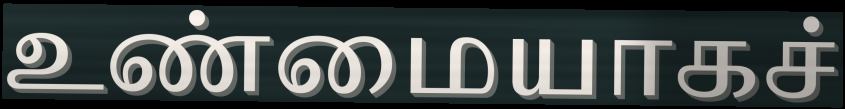
உண்மையாகச்